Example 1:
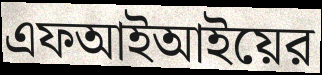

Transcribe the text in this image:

এফআইআইয়ের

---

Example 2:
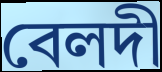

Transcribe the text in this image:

বেলদী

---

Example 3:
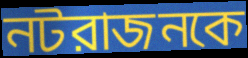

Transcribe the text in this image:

নটরাজনকে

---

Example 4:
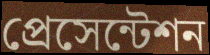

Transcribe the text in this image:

প্রেসেন্টেশন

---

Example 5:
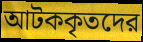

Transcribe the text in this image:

আটককৃতদের